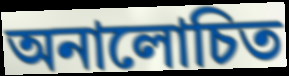
অনালোচিত